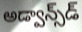
అడ్వాన్స్‌డ్